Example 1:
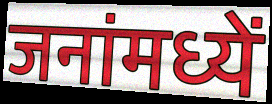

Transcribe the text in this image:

जनांमध्यें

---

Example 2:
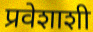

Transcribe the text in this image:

प्रवेशाशी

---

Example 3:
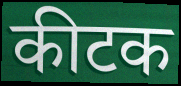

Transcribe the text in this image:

कीटक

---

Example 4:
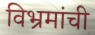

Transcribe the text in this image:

विभ्रमांची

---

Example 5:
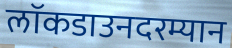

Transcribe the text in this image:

लॉकडाउनदरम्यान